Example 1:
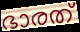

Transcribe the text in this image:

ഭാരത്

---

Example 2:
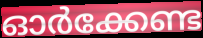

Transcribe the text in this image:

ഓർക്കേണ്ട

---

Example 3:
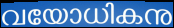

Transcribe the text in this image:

വയോധികനു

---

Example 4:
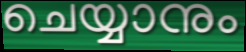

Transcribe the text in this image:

ചെയ്യാനും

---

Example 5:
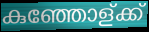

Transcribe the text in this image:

കുഞ്ഞോള്ക്ക്